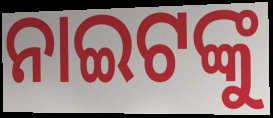
ନାଇଟଙ୍କୁ